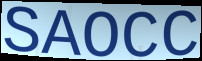
SAOCC